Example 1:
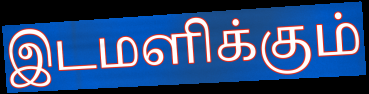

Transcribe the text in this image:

இடமளிக்கும்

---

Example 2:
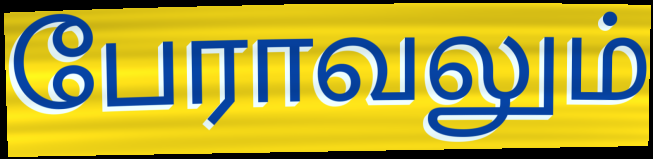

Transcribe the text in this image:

பேராவலும்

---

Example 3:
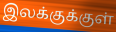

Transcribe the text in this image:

இலக்குக்குள்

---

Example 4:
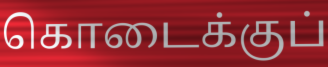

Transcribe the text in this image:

கொடைக்குப்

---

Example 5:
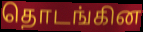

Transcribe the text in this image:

தொடங்கின